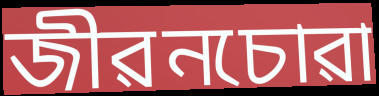
জীৱনচোৱা